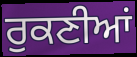
ਰੁਕਣੀਆਂ